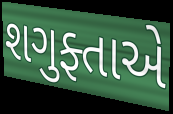
શગુફ્તાએ